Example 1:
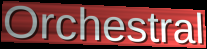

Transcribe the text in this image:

Orchestral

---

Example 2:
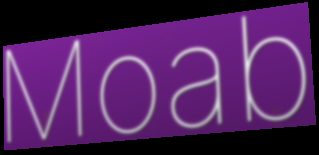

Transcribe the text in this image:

Moab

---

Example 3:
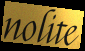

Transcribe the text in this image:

nolite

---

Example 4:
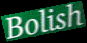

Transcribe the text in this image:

Bolish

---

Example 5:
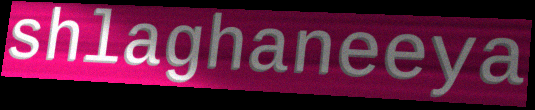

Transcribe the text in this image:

shlaghaneeya